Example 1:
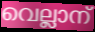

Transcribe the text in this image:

വെല്ലാന്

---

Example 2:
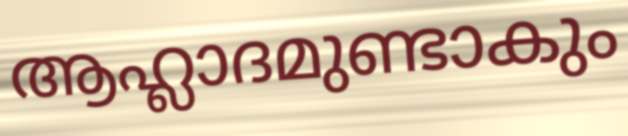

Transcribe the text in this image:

ആഹ്ലാദമുണ്ടാകും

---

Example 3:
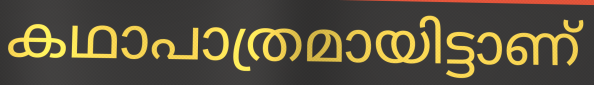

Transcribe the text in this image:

കഥാപാത്രമായിട്ടാണ്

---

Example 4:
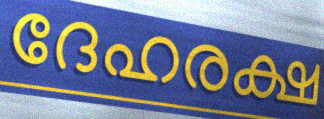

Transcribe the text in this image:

ദേഹരക്ഷ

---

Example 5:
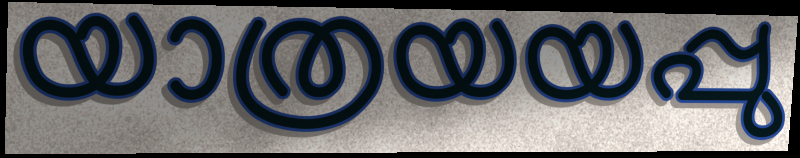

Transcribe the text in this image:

യാത്രയയപ്പു